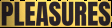
PLEASURES